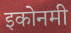
इकोनमी